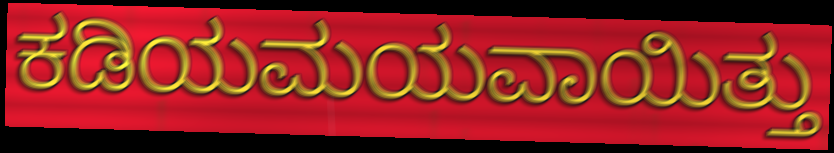
ಕಡಿಯಮಯವಾಯಿತ್ತು